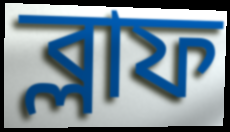
ব্লাফ